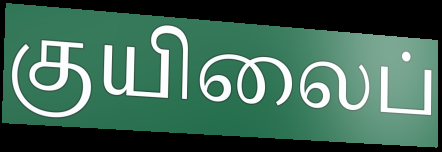
குயிலைப்